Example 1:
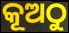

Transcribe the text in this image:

କୂଅଠୁ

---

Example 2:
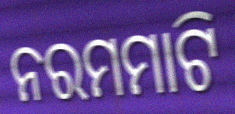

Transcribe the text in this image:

ନରମମାଟି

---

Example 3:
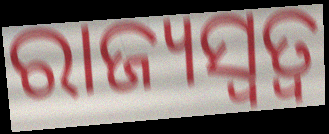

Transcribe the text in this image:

ରାଜ୍ୟସ୍ଵତ୍ଵ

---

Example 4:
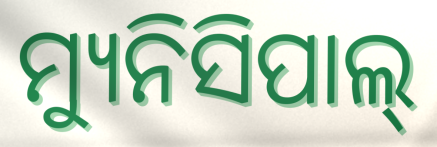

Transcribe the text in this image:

ମ୍ୟୁନିସିପାଲ୍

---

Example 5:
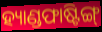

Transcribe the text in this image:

ହ୍ୟାଣ୍ଡଫାଷ୍ଟିଙ୍ଗ୍